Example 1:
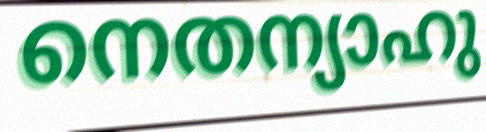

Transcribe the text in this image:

നെതന്യാഹു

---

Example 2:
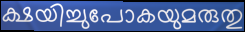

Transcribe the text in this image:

ക്ഷയിച്ചുപോകയുമരുതു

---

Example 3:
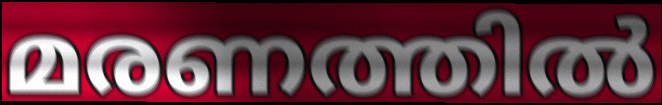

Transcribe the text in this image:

മരണത്തിൽ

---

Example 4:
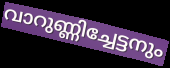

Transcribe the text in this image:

വാറുണ്ണിച്ചേട്ടനും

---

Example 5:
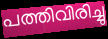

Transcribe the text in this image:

പത്തിവിരിച്ചു